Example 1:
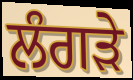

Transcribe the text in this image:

ਲੰਗੜੇ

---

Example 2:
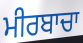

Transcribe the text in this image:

ਮੀਰਬਾਚਾ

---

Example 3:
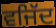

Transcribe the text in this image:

ਵਜਿੱਦ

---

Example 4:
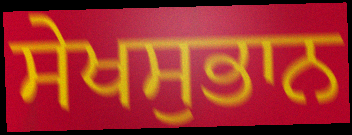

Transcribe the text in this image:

ਸੇਖਸੁਭਾਨ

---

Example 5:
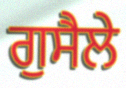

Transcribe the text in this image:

ਗੁਸੈਲੇ